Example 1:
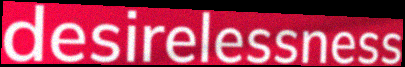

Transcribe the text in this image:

desirelessness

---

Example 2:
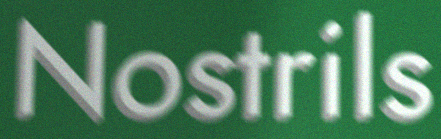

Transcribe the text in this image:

Nostrils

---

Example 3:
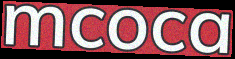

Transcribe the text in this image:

mcoca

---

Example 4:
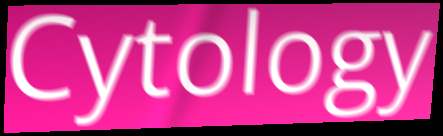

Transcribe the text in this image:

Cytology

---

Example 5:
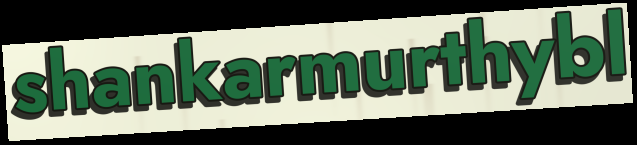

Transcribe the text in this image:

shankarmurthybl